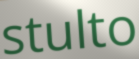
stulto